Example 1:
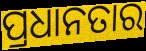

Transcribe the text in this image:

ପ୍ରଧାନତାର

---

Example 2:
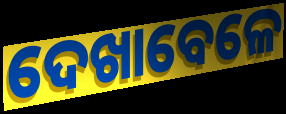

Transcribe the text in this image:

ଦେଖାବେଳେ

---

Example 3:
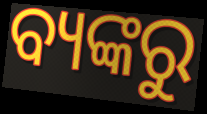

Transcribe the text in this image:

ବ୍ୟଙ୍କରୁ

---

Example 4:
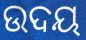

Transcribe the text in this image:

ଉଦୟ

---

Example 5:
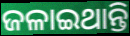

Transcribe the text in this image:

ଜଳାଇଥାନ୍ତି